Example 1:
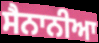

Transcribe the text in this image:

ਸੈਨਾਨੀਆ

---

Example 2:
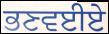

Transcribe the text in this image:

ਭਣਵਈਏ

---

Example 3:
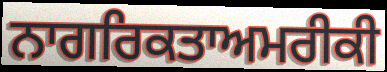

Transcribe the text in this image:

ਨਾਗਰਿਕਤਾਅਮਰੀਕੀ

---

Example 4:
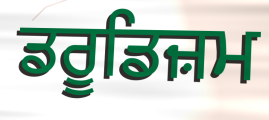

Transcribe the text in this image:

ਡਰੂਡਿਜ਼ਮ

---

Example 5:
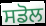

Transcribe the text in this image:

ਸਡੋਲ